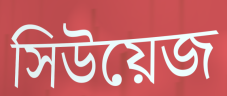
সিউয়েজ